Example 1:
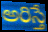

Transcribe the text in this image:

అరిస్తే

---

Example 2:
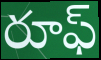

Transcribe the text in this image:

రూఫ్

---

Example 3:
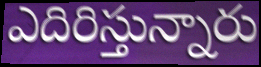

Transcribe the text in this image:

ఎదిరిస్తున్నారు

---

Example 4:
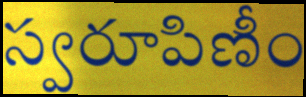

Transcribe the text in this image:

స్వరూపిణీం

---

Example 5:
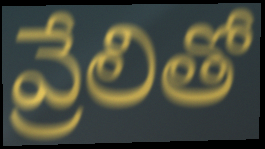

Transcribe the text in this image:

వ్రేలితో